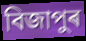
বিজাপুৰ